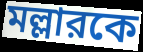
মল্লারকে